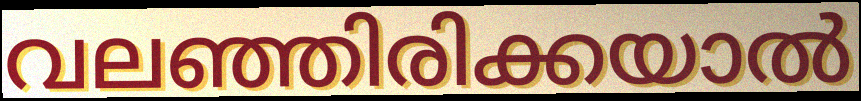
വലഞ്ഞിരിക്കയാൽ